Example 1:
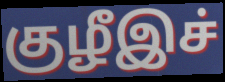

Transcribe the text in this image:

குழீஇச்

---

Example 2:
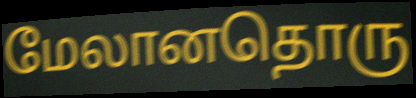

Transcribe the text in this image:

மேலானதொரு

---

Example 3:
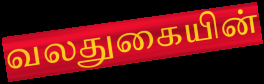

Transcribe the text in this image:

வலதுகையின்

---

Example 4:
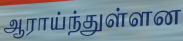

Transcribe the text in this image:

ஆராய்ந்துள்ளன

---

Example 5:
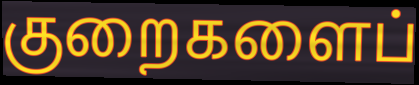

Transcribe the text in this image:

குறைகளைப்